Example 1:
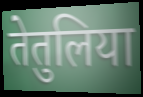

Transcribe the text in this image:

तेतुलिया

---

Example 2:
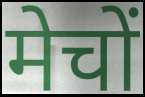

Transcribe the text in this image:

मेचों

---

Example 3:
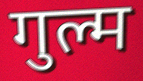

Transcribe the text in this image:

गुल्म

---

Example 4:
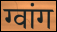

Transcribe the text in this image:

ग्वांग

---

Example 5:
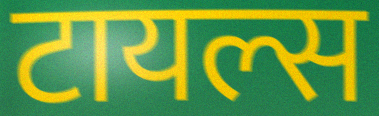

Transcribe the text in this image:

टायल्स